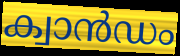
ക്വാൻഡം